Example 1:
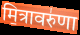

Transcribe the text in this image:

मि॒त्रावरु॑णा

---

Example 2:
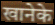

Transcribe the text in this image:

खानेके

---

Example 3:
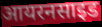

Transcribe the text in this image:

आयरनसाइड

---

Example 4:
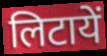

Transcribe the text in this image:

लिटायें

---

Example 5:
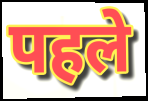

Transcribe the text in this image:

पहले